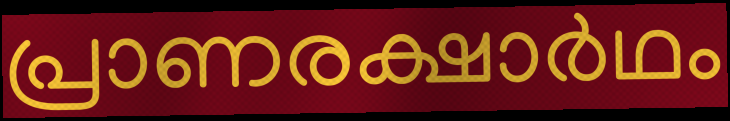
പ്രാണരക്ഷാർഥം